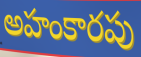
అహంకారపు